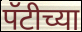
पॅटीच्या